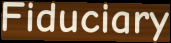
Fiduciary